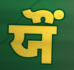
ਯੌਂ